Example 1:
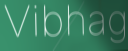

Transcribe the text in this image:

Vibhag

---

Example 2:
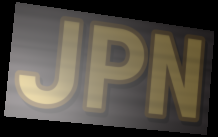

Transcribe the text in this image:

JPN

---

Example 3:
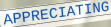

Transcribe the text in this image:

APPRECIATING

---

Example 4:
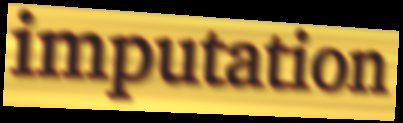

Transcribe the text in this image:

imputation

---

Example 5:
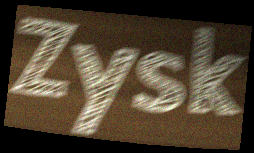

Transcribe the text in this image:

Zysk